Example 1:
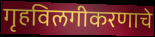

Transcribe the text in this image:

गृहविलगीकरणाचे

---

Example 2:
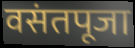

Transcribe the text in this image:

वसंतपूजा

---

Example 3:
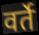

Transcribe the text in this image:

वर्ते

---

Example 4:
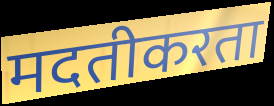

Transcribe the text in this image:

मदतीकरता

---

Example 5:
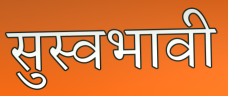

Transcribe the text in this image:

सुस्वभावी